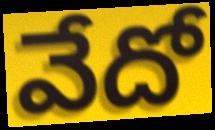
వేదో